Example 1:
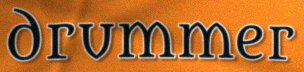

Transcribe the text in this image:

drummer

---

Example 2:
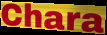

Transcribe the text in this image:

Chara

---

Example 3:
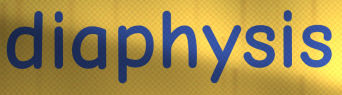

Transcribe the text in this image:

diaphysis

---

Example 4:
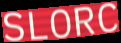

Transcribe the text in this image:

SLORC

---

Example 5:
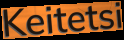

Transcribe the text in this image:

Keitetsi